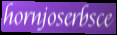
hornjoserbsce